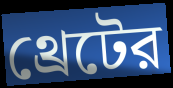
থ্রেটের